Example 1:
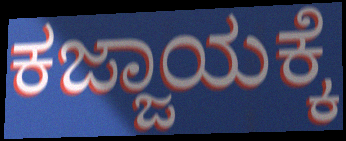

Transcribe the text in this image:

ಕಜ್ಜಾಯಕ್ಕೆ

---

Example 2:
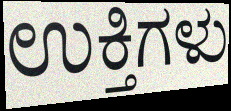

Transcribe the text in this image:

ಉಕ್ತಿಗಳು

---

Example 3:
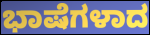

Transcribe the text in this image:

ಭಾಷೆಗಳಾದ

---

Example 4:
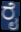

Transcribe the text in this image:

ರೈ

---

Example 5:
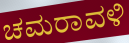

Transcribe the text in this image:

ಚಮರಾವಳಿ